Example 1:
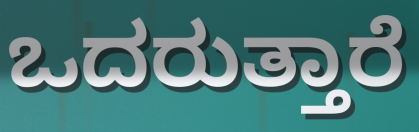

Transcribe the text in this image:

ಒದರುತ್ತಾರೆ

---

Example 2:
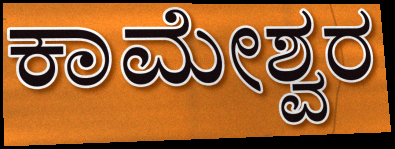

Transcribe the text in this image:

ಕಾಮೇಶ್ವರ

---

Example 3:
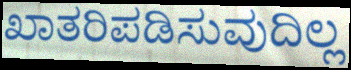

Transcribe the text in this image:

ಖಾತರಿಪಡಿಸುವುದಿಲ್ಲ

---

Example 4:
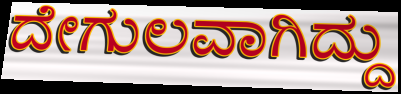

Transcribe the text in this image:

ದೇಗುಲವಾಗಿದ್ದು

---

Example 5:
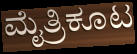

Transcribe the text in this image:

ಮೈತ್ರಿಕೂಟ